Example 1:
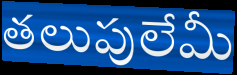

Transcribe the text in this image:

తలుపులేమీ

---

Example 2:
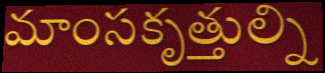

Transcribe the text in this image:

మాంసకృత్తుల్ని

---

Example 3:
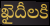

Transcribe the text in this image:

ఖైదీలకి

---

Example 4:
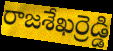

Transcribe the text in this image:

రాజశేఖర్రెడ్డి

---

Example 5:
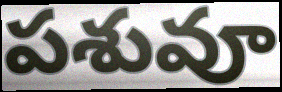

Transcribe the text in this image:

పశువూ